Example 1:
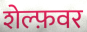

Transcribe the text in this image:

शेल्फ़वर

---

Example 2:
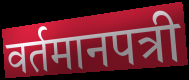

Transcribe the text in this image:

वर्तमानपत्री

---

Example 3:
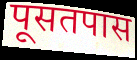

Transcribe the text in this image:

पूसतपास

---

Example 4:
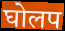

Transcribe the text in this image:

घोलप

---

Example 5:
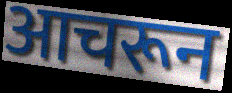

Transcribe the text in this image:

आचरून